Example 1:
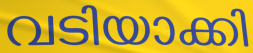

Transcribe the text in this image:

വടിയാക്കി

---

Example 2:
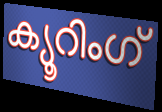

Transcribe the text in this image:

ക്യൂറിംഗ്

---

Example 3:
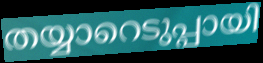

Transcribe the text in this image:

തയ്യാറെടുപ്പായി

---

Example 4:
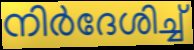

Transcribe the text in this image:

നിർദേശിച്ച്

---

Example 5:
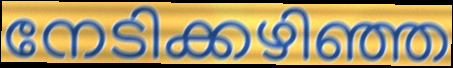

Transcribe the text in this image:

നേടിക്കഴിഞ്ഞ